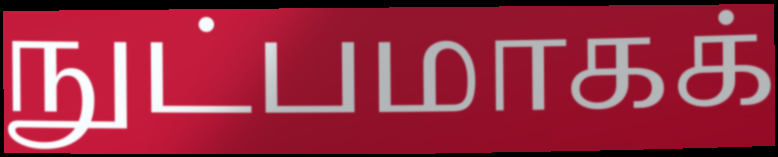
நுட்பமாகக்